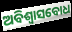
ଅବିଶ୍ୱାସବୋଧ